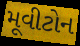
મૂવીટોન